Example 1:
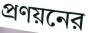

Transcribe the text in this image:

প্রণয়নের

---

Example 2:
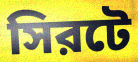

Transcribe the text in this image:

সিরটে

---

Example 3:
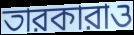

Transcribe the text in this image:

তারকারাও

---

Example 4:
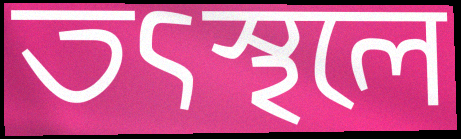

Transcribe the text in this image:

তৎস্থলে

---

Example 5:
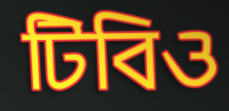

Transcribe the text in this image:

টিবিও